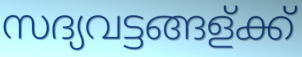
സദ്യവട്ടങ്ങള്ക്ക്